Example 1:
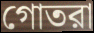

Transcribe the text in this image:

গোতরা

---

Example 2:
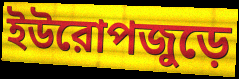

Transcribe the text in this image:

ইউরোপজুড়ে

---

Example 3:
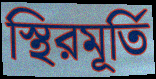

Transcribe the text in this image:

স্থিরমূর্তি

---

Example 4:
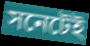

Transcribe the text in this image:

সনেটেই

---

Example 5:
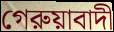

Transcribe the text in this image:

গেরুয়াবাদী